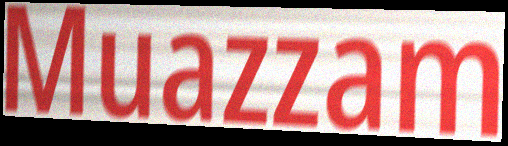
Muazzam